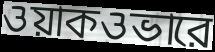
ওয়াকওভারে